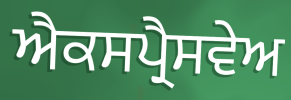
ਐਕਸਪ੍ਰੈਸਵੇਅ